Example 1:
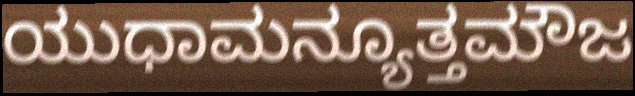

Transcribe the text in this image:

ಯುಧಾಮನ್ಯೂತ್ತಮೌಜ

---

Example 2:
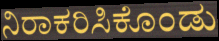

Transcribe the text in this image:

ನಿರಾಕರಿಸಿಕೊಂಡು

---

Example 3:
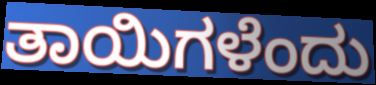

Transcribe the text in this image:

ತಾಯಿಗಳೆಂದು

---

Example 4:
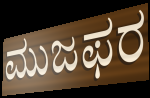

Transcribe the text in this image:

ಮುಜಫರ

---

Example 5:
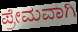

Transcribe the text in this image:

ಪ್ರೇಮವಾಗಿ